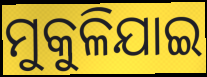
ମୁକୁଳିଯାଇ